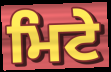
ਮਿਟੇ